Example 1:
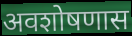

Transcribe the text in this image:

अवशोषणास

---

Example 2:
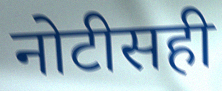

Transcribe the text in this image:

नोटीसही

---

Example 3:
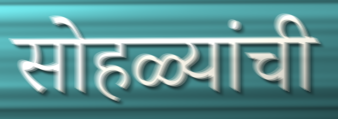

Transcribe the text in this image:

सोहळ्यांची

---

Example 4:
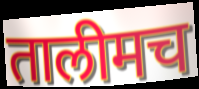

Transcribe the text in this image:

तालीमच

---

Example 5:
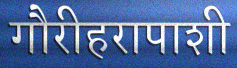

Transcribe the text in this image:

गौरीहरापाशी